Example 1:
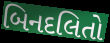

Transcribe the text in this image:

બિનદલિતો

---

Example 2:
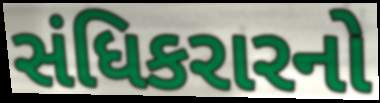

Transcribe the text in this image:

સંધિકરારનો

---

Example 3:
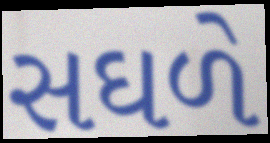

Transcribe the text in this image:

સઘળે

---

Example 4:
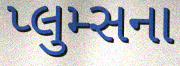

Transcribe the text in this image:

પ્લુમ્સના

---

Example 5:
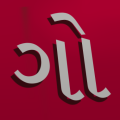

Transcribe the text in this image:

ગો